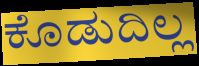
ಕೊಡುದಿಲ್ಲ